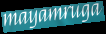
mayamruga